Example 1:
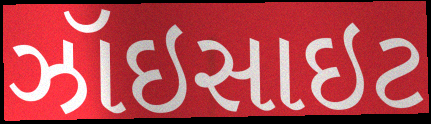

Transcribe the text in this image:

ઝૉઇસાઇટ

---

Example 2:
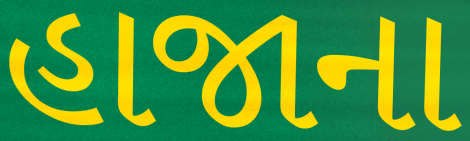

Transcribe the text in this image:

હાજાના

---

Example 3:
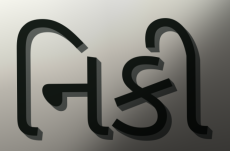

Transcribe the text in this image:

નિકી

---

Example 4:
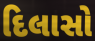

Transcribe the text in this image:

દિલાસો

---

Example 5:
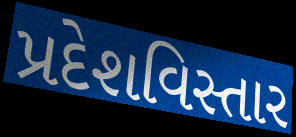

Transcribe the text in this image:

પ્રદેશવિસ્તાર